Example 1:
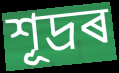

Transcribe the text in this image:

শূদ্ৰৰ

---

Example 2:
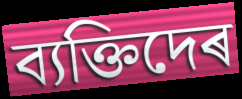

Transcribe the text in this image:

ব্যক্তিদেৰ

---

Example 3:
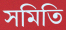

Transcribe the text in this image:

সমিতি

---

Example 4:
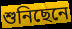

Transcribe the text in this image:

শুনিছেনে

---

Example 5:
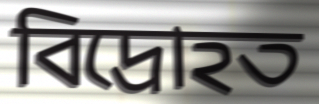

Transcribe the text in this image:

বিদ্ৰোহত